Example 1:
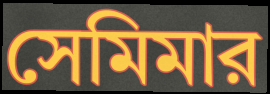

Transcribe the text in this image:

সেমিমার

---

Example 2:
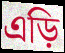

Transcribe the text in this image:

এড়ি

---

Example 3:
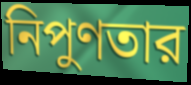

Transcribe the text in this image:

নিপুণতার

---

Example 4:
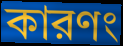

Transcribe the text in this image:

কারণং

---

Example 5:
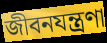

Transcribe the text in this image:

জীবনযন্ত্রণা